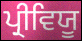
ਪ੍ਰੀਵਿਯੂ